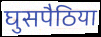
घुसपैठिया